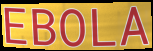
EBOLA